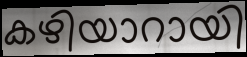
കഴിയാറായി